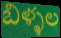
బిళ్ళల